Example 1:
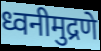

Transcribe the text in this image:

ध्वनीमुद्रणे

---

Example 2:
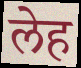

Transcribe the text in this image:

लेह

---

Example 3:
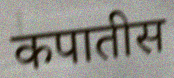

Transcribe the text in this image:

कपातीस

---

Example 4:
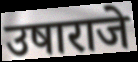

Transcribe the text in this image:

उषाराजे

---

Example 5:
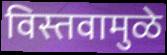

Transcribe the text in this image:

विस्तवामुळे